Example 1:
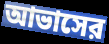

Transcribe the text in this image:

আভাসের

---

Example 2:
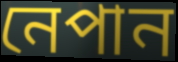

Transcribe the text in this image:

নেপান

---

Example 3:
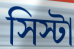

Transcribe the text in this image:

সিস্টা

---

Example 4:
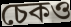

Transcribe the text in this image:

চেকও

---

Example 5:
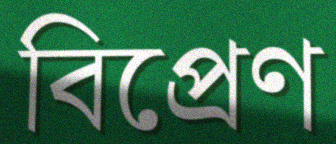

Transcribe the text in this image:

বিপ্রেণ